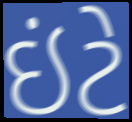
ઇંટે